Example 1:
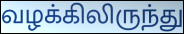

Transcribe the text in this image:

வழக்கிலிருந்து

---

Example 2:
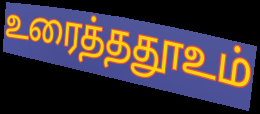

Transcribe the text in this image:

உரைத்ததூஉம்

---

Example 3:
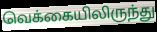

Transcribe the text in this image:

வெக்கையிலிருந்து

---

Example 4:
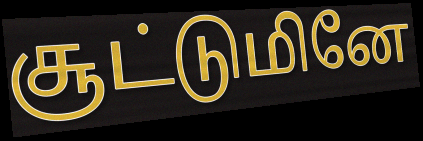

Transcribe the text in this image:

சூட்டுமினே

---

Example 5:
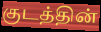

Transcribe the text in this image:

குடத்தின்